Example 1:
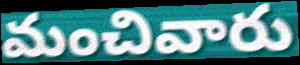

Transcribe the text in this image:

మంచివారు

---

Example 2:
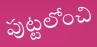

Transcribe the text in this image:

పుట్టలోంచి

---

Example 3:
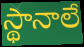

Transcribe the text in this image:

స్థానాలే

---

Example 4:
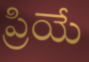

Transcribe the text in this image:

ప్రియే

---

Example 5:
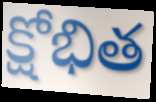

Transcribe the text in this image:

క్షోభిత